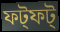
ফট্ফট্